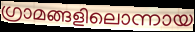
ഗ്രാമങ്ങളിലൊന്നായ